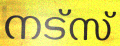
നട്സ്